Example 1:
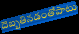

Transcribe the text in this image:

దెబ్బతినడంతోపాటు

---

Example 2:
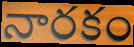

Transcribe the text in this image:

నారకం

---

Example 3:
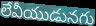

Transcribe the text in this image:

లేవీయుడునగు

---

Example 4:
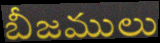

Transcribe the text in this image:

బీజములు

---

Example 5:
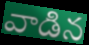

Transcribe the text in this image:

వాడిన